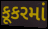
કૂકરમાં